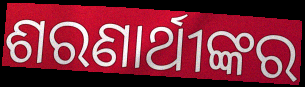
ଶରଣାର୍ଥୀଙ୍କର